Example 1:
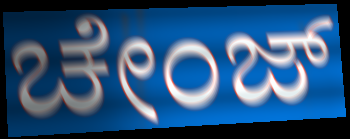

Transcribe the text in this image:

ಚೇಂಜ್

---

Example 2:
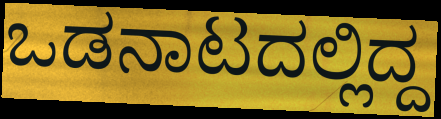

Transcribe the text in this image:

ಒಡನಾಟದಲ್ಲಿದ್ದ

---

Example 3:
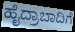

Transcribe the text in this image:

ಹೈದ್ರಾಬಾದಿಗೆ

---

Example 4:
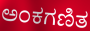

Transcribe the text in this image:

ಅಂಕಗಣಿತ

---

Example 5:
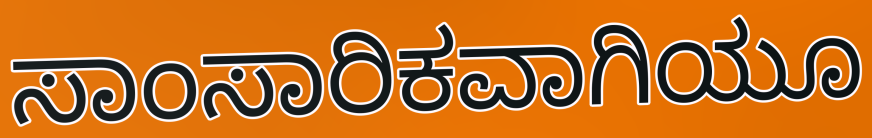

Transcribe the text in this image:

ಸಾಂಸಾರಿಕವಾಗಿಯೂ